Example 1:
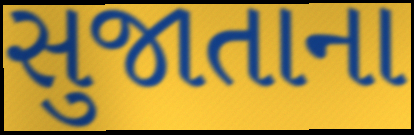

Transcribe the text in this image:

સુજાતાના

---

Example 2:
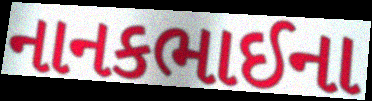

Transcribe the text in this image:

નાનકભાઈના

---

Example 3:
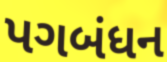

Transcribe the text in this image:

પગબંધન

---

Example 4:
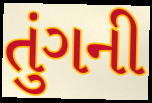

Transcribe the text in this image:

તુંગની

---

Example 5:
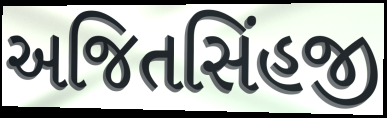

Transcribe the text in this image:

અજિતસિંહજી